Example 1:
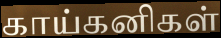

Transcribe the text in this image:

காய்கனிகள்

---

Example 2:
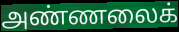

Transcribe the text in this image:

அண்ணலைக்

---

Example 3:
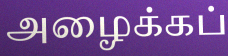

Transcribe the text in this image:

அழைக்கப்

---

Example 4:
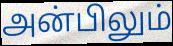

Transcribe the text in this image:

அன்பிலும்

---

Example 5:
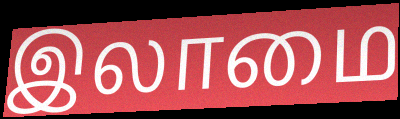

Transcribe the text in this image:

இலாமை